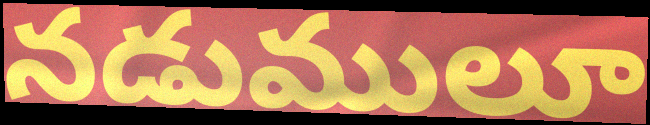
నడుములూ